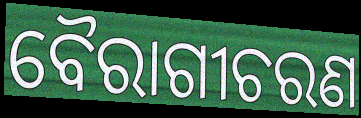
ବୈରାଗୀଚରଣ